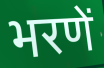
भरणें